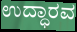
ಉದ್ಧಾರವ